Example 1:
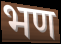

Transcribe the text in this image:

भण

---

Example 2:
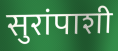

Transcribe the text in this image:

सुरांपाशी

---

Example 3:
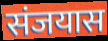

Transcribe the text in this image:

संजयास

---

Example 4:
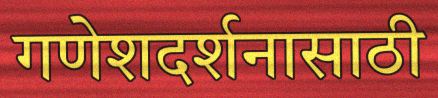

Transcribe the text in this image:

गणेशदर्शनासाठी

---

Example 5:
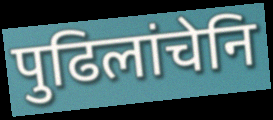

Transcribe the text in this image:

पुढिलांचेनि